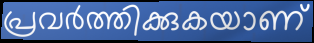
പ്രവർത്തിക്കുകയാണ്